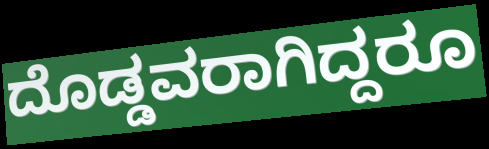
ದೊಡ್ಡವರಾಗಿದ್ದರೂ